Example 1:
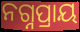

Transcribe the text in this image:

ନଗ୍ନପ୍ରାୟ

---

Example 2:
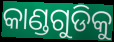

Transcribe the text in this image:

କାଣ୍ଡଗୁଡିକୁ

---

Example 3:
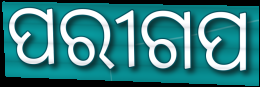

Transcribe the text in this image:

ପରୀଗପ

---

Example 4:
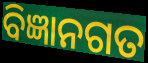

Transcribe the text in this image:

ବିଜ୍ଞାନଗତ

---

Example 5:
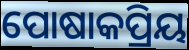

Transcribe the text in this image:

ପୋଷାକପ୍ରିୟ